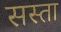
सस्ता